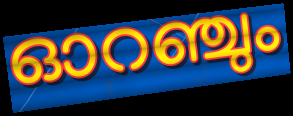
ഓറഞ്ചും